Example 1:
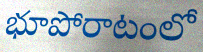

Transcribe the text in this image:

భూపోరాటంలో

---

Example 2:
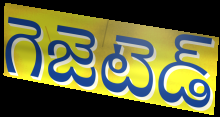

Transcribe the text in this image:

గెజెటెడ్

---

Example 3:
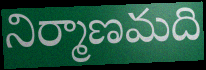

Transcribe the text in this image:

నిర్మాణమది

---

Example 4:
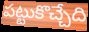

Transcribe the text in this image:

పట్టుకొచ్చేది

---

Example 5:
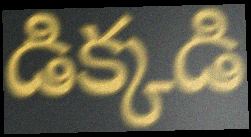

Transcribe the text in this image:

డిక్కడి